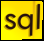
sql